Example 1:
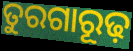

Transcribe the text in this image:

ତୁରଗାରୂଢ଼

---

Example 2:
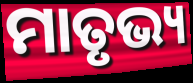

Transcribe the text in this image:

ମାତୃଭ୍ୟ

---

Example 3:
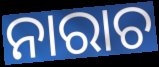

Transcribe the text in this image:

ନାରାଚ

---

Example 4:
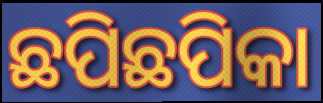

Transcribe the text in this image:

ଛପିଛପିକା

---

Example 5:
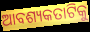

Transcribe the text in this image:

ଆବଶ୍ୟକତାଟିକୁ